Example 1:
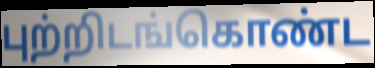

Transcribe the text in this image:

புற்றிடங்கொண்ட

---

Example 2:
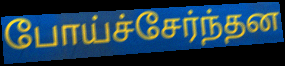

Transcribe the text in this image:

போய்ச்சேர்ந்தன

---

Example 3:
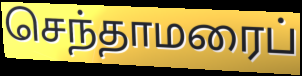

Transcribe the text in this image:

செந்தாமரைப்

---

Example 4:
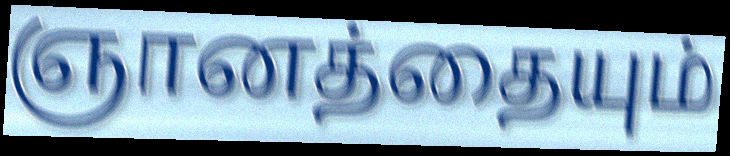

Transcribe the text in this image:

ஞானத்தையும்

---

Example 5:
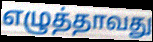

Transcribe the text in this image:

எழுத்தாவது